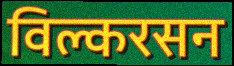
विल्करसन